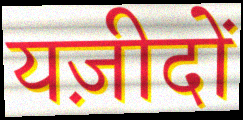
यज़ीदों